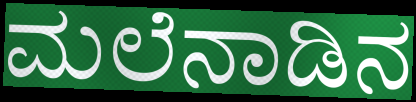
ಮಲೆನಾಡಿನ